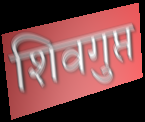
शिवगुप्त